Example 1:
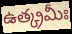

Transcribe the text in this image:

ఉత్క్రమీః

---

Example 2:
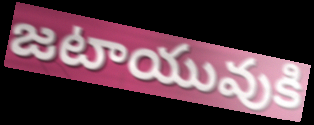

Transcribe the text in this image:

జటాయువుకి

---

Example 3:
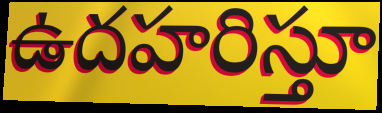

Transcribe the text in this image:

ఉదహరిస్తూ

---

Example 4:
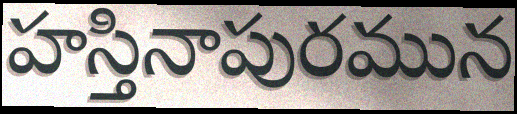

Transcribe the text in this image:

హస్తినాపురమున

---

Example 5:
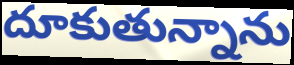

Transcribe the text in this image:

దూకుతున్నాను